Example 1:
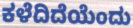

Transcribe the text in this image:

ಕಳೆದಿದೆಯೆಂದು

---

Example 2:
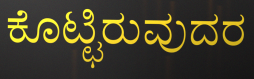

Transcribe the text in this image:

ಕೊಟ್ಟಿರುವುದರ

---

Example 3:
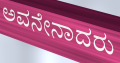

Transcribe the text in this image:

ಅವನೇನಾದರು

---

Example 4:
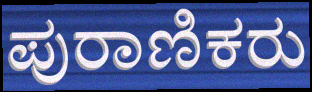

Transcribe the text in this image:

ಪುರಾಣಿಕರು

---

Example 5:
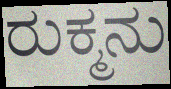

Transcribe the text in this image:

ರುಕ್ಮನು